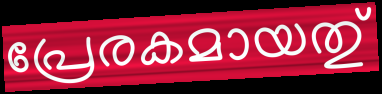
പ്രേരകമായതു്